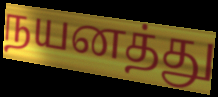
நயனத்து